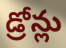
డ్రోన్లు